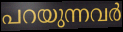
പറയുന്നവർ